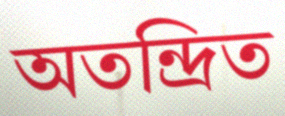
অতন্দ্রিত